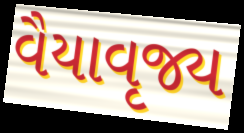
વૈયાવૃજ્ય